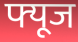
फ्यूज